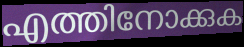
എത്തിനോക്കുക